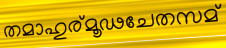
തമാഹുര്മൂഢചേതസമ്